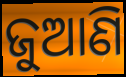
ଜୁଆଣି